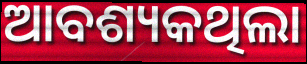
ଆବଶ୍ୟକଥିଲା